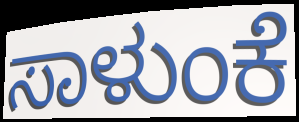
ಸಾಳುಂಕೆ